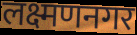
लक्ष्मणनगर